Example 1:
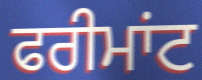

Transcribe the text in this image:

ਫਰੀਮਾਂਟ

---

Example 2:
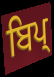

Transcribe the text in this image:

ਬਿਪ੍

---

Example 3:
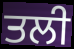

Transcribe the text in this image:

ਤਲੀ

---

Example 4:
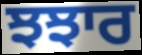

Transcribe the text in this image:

ਝਝਾਰ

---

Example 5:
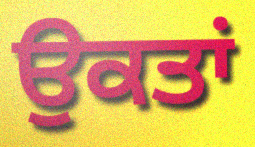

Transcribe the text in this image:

ਉਕਤਾਂ